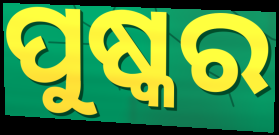
ପୁଷ୍କର